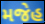
મજેહ